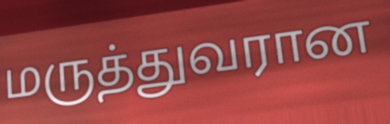
மருத்துவரான